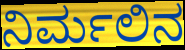
ನಿರ್ಮಲಿನ